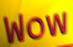
Wow